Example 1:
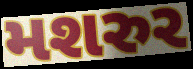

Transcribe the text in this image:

મશરુર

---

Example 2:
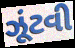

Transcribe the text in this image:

ઝૂંટવી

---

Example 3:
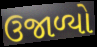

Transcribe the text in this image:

ઉજાળ્યો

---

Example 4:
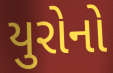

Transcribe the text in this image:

યુરોનો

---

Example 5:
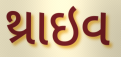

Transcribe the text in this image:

થ્રાઇવ